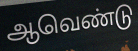
ஆவெண்டு